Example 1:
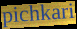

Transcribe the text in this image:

pichkari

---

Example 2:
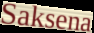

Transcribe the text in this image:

Saksena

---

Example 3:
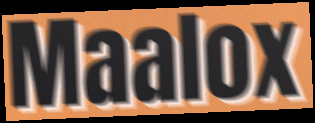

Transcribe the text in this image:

Maalox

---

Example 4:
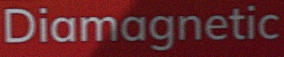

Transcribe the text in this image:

Diamagnetic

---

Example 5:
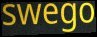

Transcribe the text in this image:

swego